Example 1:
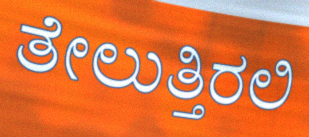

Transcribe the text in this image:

ತೇಲುತ್ತಿರಲಿ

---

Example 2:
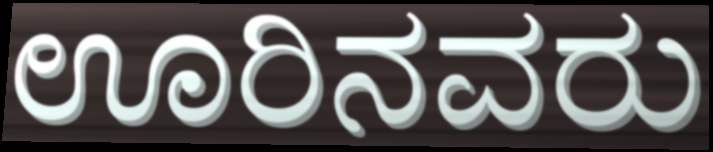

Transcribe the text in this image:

ಊರಿನವರು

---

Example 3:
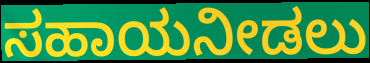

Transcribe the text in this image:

ಸಹಾಯನೀಡಲು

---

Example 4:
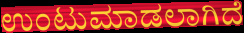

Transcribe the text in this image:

ಉಂಟುಮಾಡಲಾಗಿದೆ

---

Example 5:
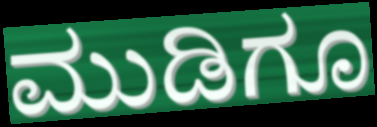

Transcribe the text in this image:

ಮುಡಿಗೂ